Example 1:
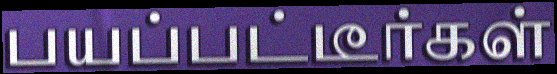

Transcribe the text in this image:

பயப்பட்டீர்கள்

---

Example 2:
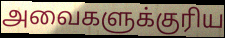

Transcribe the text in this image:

அவைகளுக்குரிய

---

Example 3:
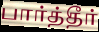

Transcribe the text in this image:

பார்த்தீர்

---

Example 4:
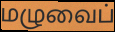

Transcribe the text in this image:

மழுவைப்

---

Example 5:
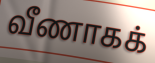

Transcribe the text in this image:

வீணாகக்